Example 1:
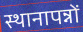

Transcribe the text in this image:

स्थानापन्नों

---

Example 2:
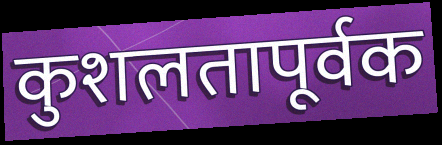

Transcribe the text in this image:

कुशलतापूर्वक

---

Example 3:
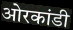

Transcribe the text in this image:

ओरकांडी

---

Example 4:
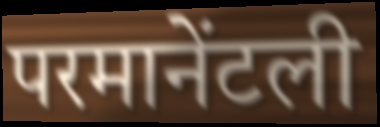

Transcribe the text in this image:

परमानेंटली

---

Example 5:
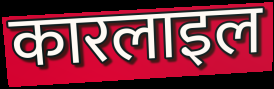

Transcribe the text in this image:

कारलाइल